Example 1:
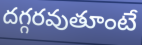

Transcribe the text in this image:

దగ్గరవుతూంటే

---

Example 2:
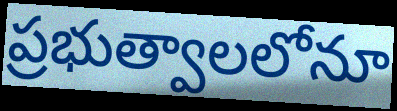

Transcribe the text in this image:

ప్రభుత్వాలలోనూ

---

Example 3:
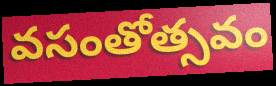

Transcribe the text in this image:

వసంతోత్సవం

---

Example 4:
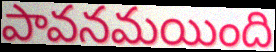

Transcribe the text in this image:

పావనమయింది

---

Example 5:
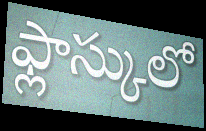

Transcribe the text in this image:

ఫ్లాస్కులో